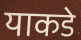
याकडे